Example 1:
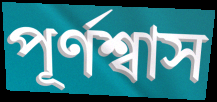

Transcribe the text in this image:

পূর্ণশ্বাস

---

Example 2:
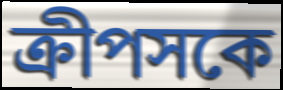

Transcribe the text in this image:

ক্রীপসকে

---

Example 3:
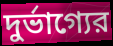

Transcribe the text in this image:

দুর্ভাগ্যের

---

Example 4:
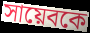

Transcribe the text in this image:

সায়েবকে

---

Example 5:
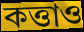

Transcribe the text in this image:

কত্তাও